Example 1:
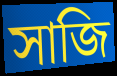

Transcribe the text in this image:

সাজি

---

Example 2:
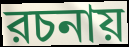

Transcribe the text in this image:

রচনায়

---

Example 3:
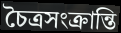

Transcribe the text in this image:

চৈত্রসংক্রান্তি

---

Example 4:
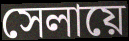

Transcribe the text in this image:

সেলায়ে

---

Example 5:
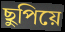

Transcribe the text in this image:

ছুপিয়ে